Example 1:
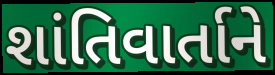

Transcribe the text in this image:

શાંતિવાર્તાને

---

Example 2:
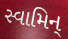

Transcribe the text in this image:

સ્વામિન્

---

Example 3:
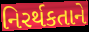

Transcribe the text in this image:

નિરર્થકતાને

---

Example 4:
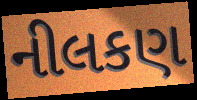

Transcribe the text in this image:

નીલકણ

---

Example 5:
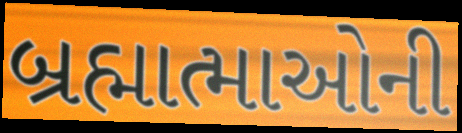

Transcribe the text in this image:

બ્રહ્માત્માઓની